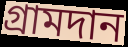
গ্রামদান